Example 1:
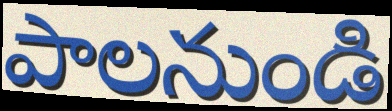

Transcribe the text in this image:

పాలనుండి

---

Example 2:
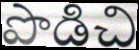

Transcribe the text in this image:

పొడిచి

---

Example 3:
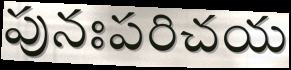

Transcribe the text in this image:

పునఃపరిచయ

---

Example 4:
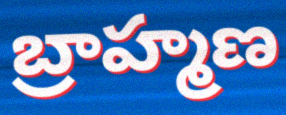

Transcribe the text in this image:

బ్రాహ్మణ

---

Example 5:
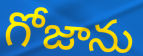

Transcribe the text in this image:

గోజాను